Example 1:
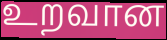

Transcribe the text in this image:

உறவான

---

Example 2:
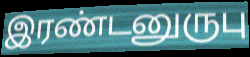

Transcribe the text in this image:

இரண்டனுருபு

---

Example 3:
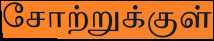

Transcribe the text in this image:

சோற்றுக்குள்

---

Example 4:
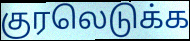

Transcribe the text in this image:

குரலெடுக்க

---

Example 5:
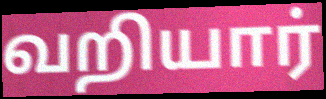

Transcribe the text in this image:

வறியார்